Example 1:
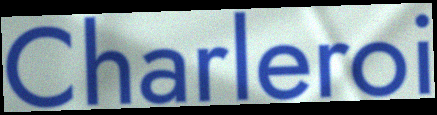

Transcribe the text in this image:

Charleroi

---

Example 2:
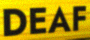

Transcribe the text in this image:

DEAF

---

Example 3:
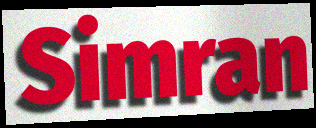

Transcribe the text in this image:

Simran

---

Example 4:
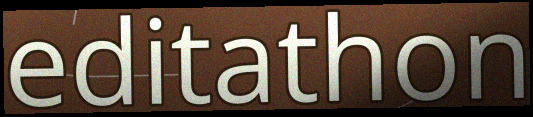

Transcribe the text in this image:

editathon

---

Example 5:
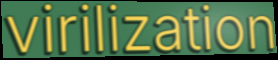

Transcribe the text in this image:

virilization